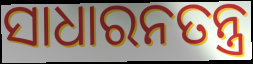
ସାଧାରନତନ୍ତ୍ର